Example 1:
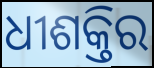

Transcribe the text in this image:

ଧୀଶକ୍ତିର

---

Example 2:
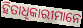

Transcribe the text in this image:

ହିତାଧିକାରୀମାନେ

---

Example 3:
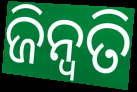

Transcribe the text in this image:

ଜିନ୍ୱତି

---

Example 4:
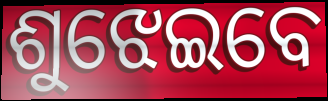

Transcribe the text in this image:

ଶୁଝେଇବେ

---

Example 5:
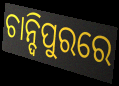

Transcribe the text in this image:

ଚାନ୍ଦିପୁରରେ